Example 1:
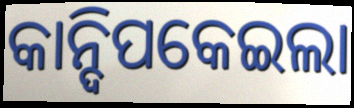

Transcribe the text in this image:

କାନ୍ଦିପକେଇଲା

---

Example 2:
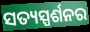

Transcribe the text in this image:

ସତ୍ୟସ୍ପର୍ଶନର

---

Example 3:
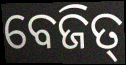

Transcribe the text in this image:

ବେଜିତ୍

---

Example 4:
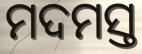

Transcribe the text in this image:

ମଦମସ୍ତ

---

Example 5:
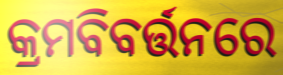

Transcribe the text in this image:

କ୍ରମବିବର୍ତ୍ତନରେ